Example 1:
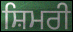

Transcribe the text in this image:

ਸ਼ਿਮਰੀ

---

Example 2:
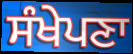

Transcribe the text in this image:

ਸੰਖੇਪਣਾ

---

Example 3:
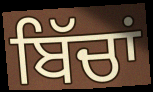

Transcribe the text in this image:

ਬਿੱਚਾਂ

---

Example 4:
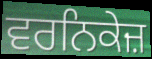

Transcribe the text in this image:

ਵਰਨਿਕੇਜ਼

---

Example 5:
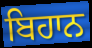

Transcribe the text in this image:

ਬਿਹਾਨ